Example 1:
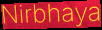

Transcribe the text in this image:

Nirbhaya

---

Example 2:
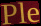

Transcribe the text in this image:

Ple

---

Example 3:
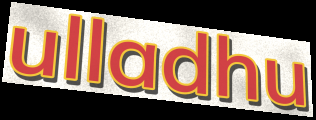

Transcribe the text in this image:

ulladhu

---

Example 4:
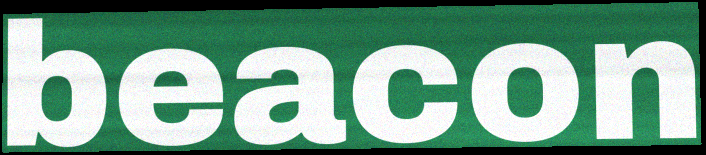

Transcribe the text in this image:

beacon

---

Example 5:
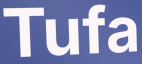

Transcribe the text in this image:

Tufa